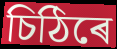
চিঠিৰে